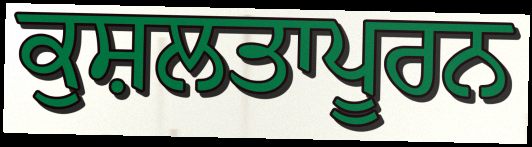
ਕੁਸ਼ਲਤਾਪੂਰਨ